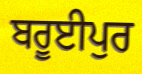
ਬਰੂਈਪੁਰ